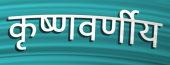
कृष्णवर्णीय